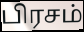
பிரசம்